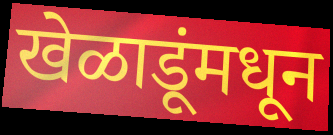
खेळाडूंमधून